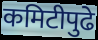
कमिटीपुढे